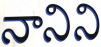
నానిని